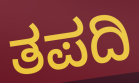
ತಪದಿ